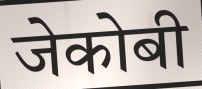
जेकोबी